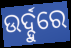
ଉର୍ଦ୍ଦୁରେ